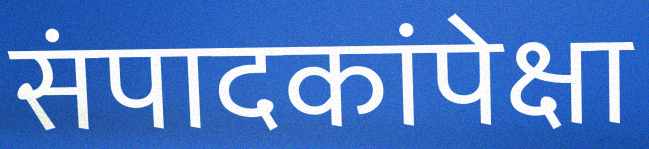
संपादकांपेक्षा